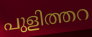
പുളിത്തറ